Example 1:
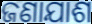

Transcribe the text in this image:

ଜଣାଯାଶ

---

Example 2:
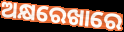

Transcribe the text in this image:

ଅକ୍ଷରେଖାରେ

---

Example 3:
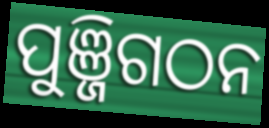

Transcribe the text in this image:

ପୁଞ୍ଜିଗଠନ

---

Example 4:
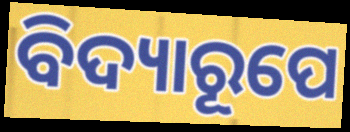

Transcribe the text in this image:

ବିଦ୍ୟାରୂପେ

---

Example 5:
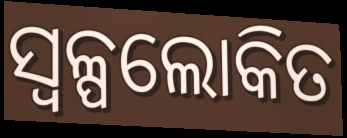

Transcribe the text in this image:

ସ୍ୱଳ୍ପଲୋକିତ